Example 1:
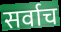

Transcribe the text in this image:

सर्वाच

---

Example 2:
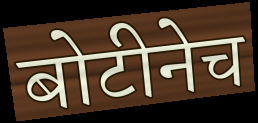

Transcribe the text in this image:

बोटीनेच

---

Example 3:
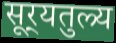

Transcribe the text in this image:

सूर्यतुल्य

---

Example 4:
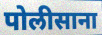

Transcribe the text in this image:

पोलीसाना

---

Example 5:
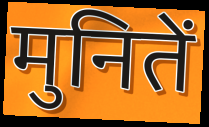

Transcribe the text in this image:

मुनितें